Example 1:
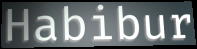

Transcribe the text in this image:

Habibur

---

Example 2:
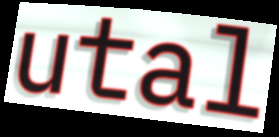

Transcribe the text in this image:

utal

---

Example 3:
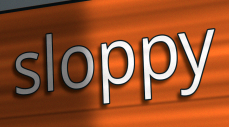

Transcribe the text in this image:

sloppy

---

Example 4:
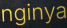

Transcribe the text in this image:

nginya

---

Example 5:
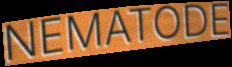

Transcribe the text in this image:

NEMATODE